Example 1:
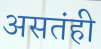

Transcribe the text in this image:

असतंही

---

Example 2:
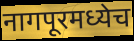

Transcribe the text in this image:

नागपूरमध्येच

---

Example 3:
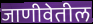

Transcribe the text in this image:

जाणीवेतील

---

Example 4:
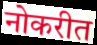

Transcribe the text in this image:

नोकरीत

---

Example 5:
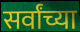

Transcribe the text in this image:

सर्वांच्या